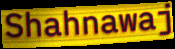
Shahnawaj